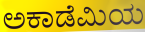
ಅಕಾಡೆಮಿಯ